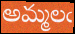
అమ్మలఁ